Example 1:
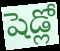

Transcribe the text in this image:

షెడ్లో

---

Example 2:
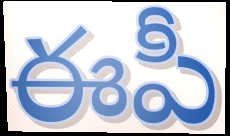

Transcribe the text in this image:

ఈపీ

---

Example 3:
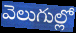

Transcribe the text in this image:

వెలుగుల్లో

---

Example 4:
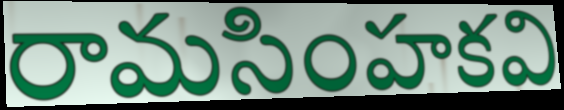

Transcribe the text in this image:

రామసింహకవి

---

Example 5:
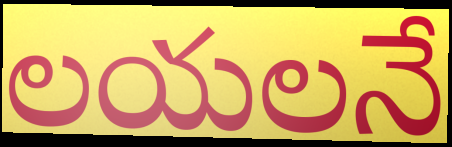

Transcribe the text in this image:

లయలనే